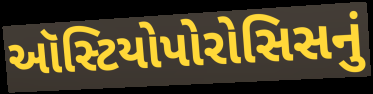
ઑસ્ટિયોપોરોસિસનું